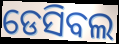
ଡେସିବଲ